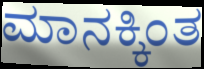
ಮಾನಕ್ಕಿಂತ